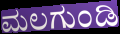
ಮಲಗುಂಡಿ